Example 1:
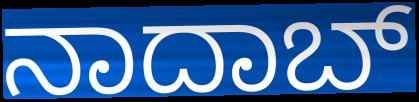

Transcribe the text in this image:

ನಾದಾಬ್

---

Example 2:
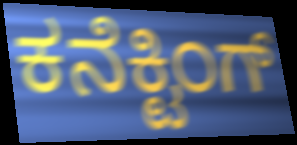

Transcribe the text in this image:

ಕನೆಕ್ಟಿಂಗ್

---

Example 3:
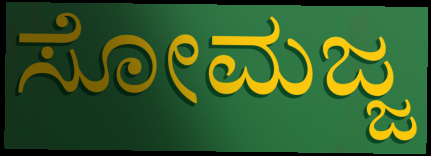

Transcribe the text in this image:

ಸೋಮಜ್ಜ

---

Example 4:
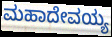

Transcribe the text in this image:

ಮಹಾದೇವಯ್ಯ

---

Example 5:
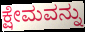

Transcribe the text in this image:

ಕ್ಷೇಮವನ್ನು